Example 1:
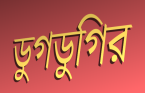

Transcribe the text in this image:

ডুগডুগির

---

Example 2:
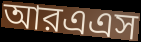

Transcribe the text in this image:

আরএএস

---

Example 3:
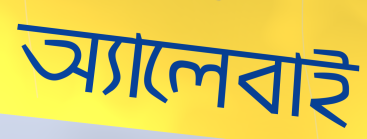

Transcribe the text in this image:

অ্যালেবাই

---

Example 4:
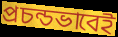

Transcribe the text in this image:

প্রচন্ডভাবেই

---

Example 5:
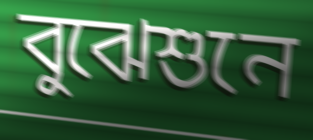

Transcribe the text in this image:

বুঝেশুনে